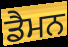
ਡੈਮਨ